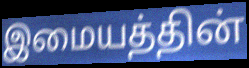
இமையத்தின்